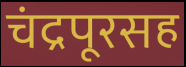
चंद्रपूरसह